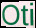
Oti